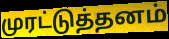
முரட்டுத்தனம்